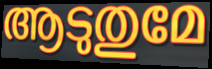
ആടുതുമേ